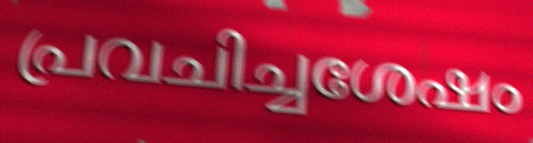
പ്രവചിച്ചശേഷം